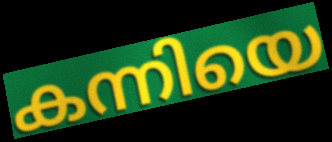
കന്നിയെ